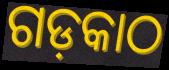
ଗଡ଼କାଠ